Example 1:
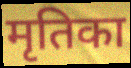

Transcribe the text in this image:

मृतिका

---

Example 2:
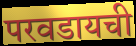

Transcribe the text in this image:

परवडायची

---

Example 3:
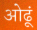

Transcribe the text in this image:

ओढूं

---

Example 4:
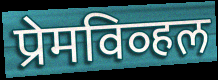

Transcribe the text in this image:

प्रेमविव्हल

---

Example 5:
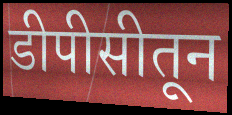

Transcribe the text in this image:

डीपीसीतून